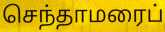
செந்தாமரைப்